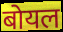
बोयल